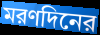
মরণদিনের